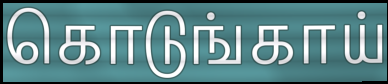
கொடுங்காய்